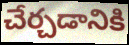
చేర్చడానికి